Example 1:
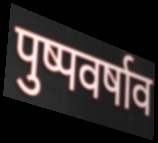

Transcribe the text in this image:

पुष्पवर्षाव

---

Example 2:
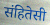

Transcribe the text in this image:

संहितेसी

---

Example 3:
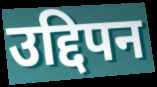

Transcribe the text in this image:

उद्दिपन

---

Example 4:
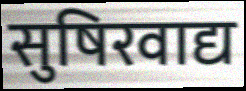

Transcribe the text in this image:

सुषिरवाद्य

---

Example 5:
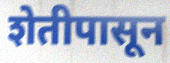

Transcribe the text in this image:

शेतीपासून